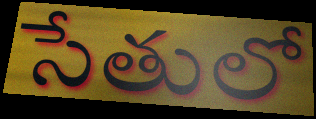
సేతులో